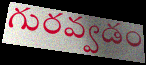
గురవ్వడం